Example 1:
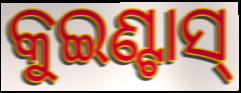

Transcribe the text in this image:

କୁଇଣ୍ଟାସ୍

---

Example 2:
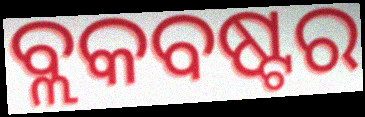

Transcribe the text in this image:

ବ୍ଲକବଷ୍ଟର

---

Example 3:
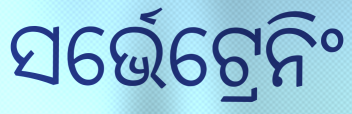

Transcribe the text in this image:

ସର୍ଭେଟ୍ରେନିଂ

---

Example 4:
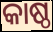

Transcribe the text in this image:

କାଷ୍ଠ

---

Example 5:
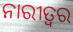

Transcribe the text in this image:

ନାରୀତ୍ଵର